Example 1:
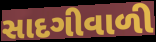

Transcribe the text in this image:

સાદગીવાળી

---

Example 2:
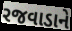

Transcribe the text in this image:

રજવાડાને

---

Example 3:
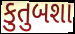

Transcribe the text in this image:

કુતુબશા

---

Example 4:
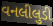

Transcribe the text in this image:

વનલીલુડી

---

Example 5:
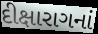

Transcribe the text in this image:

દીક્ષારાગનાં